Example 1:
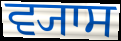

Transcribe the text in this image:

ਵ੍ਯਾਸ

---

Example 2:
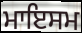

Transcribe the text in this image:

ਮਾਇਸਮ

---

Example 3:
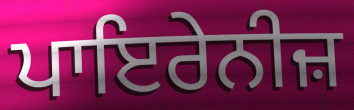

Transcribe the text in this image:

ਪਾਇਰੇਨੀਜ਼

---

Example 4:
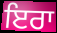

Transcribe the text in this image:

ਇਰਾ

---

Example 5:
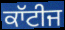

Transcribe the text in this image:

ਕਾੱਟੀਜ